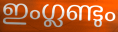
ഇംഗ്ലണ്ടും